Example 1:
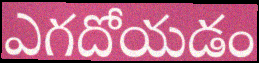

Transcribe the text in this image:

ఎగదోయడం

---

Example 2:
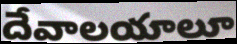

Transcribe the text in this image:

దేవాలయాలూ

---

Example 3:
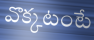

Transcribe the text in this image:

వొక్కటంటే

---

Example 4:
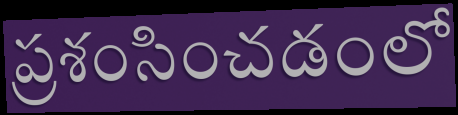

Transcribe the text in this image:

ప్రశంసించడంలో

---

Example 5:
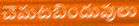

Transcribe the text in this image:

చెమటబిందువులు